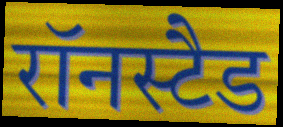
रॉनस्टैड